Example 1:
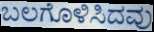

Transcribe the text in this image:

ಬಲಗೊಳಿಸಿದವು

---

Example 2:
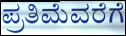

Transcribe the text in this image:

ಪ್ರತಿಮೆವರೆಗೆ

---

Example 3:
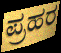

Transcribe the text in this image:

ಪ್ರಹರ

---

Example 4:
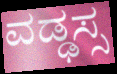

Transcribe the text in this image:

ವಡ್ಢಸ್ಸ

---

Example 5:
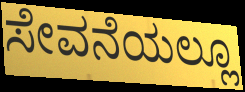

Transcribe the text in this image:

ಸೇವನೆಯಲ್ಲೂ